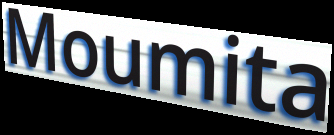
Moumita